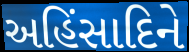
અહિંસાદિને